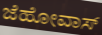
ಜೆಹೋವಾಸ್